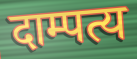
दाम्पत्य